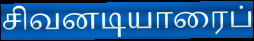
சிவனடியாரைப்